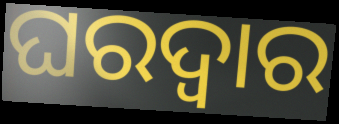
ଘରଦ୍ବାର